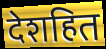
देशहित